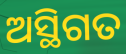
ଅସ୍ଥିଗତ